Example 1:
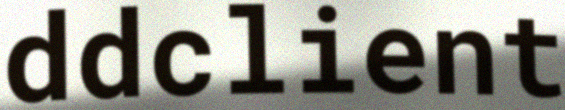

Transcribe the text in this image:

ddclient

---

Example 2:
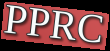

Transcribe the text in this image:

PPRC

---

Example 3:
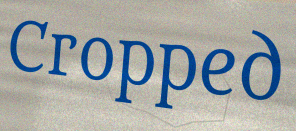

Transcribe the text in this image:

Cropped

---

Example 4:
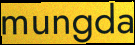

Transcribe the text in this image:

mungda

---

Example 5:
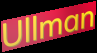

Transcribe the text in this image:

Ullman